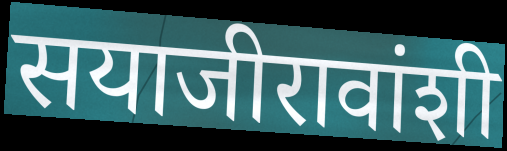
सयाजीरावांशी